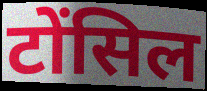
टोंसिल